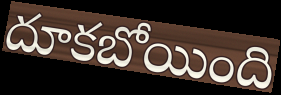
దూకబోయింది